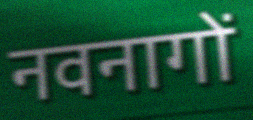
नवनागों